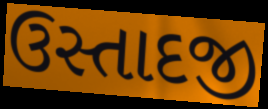
ઉસ્તાદજી